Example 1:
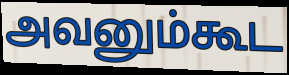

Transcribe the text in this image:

அவனும்கூட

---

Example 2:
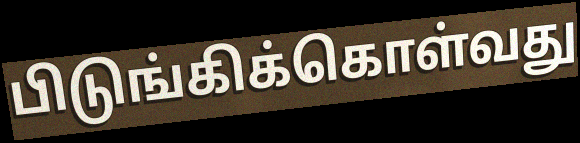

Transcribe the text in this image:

பிடுங்கிக்கொள்வது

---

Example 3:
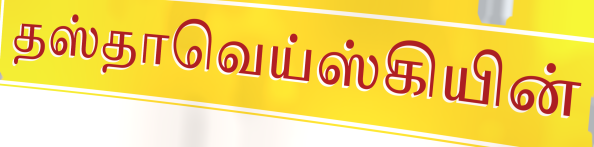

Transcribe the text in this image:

தஸ்தாவெய்ஸ்கியின்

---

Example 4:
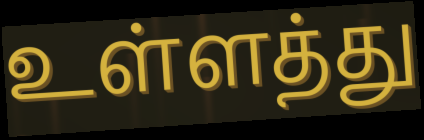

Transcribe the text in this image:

உள்ளத்து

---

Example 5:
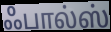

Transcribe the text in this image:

ஃபால்ஸ்